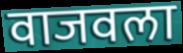
वाजवला